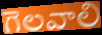
గెలవాలి